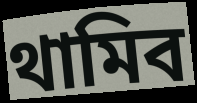
থামিব